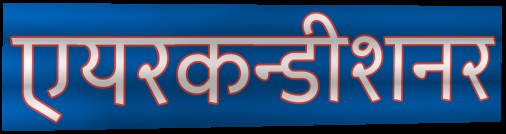
एयरकन्डीशनर